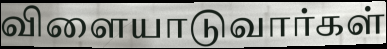
விளையாடுவார்கள்